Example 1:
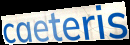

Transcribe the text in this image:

caeteris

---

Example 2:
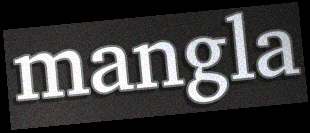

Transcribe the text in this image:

mangla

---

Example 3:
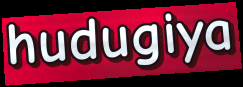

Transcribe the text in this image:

hudugiya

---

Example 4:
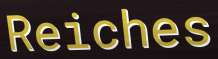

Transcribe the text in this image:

Reiches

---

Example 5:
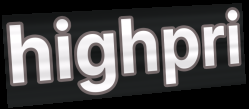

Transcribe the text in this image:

highpri